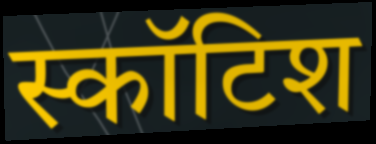
स्कॉटिश